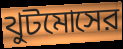
থুটমোসের